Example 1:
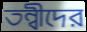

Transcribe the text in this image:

তন্বীদের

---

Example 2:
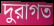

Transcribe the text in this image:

দুরাগত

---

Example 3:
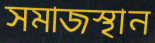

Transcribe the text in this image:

সমাজস্থান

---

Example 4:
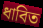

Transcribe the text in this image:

ধাবিত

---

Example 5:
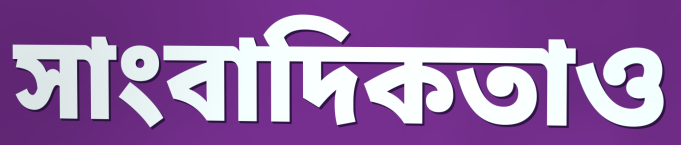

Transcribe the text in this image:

সাংবাদিকতাও